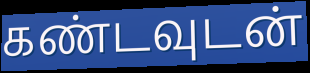
கண்டவுடன்